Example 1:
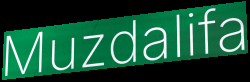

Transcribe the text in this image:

Muzdalifa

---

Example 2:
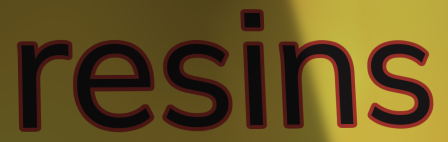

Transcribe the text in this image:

resins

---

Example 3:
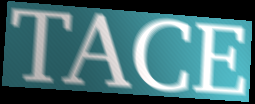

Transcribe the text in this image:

TACE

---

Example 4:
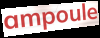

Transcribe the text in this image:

ampoule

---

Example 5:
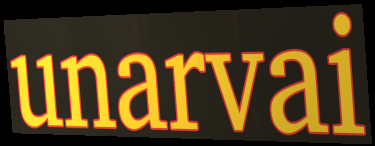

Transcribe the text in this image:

unarvai